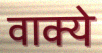
वाक्ये